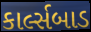
કાર્લ્સબાડ